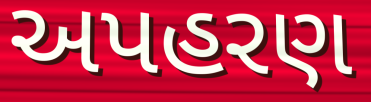
અપહરણ